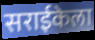
सराईकेला